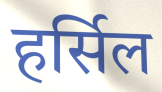
हर्सिल